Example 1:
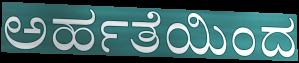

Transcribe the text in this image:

ಅರ್ಹತೆಯಿಂದ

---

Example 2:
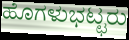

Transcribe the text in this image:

ಹೊಗಳುಭಟ್ಟರು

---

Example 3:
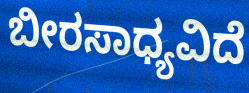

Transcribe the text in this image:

ಬೀರಸಾಧ್ಯವಿದೆ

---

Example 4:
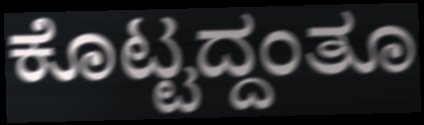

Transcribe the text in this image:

ಕೊಟ್ಟದ್ದಂತೂ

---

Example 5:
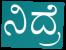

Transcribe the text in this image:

ನಿದ್ರೆ